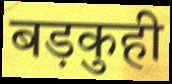
बड़कुही